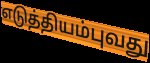
எடுத்தியம்புவது